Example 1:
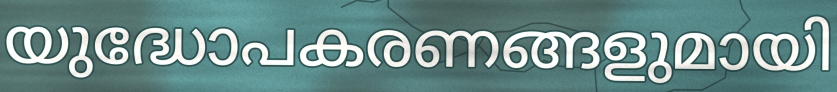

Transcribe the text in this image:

യുദ്ധോപകരണങ്ങളുമായി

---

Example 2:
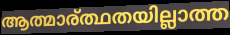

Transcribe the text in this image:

ആത്മാര്ത്ഥതയില്ലാത്ത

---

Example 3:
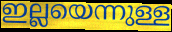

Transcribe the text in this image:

ഇല്ലയെന്നുള്ള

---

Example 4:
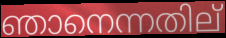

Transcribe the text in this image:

ഞാനെന്നതില്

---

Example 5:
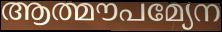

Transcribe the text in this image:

ആത്മൗപമ്യേന